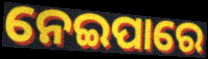
ନେଇପାରେ